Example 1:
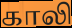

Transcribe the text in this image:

காலி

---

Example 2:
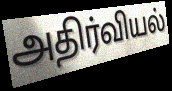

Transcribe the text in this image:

அதிர்வியல்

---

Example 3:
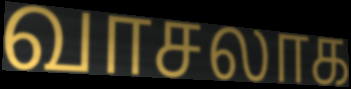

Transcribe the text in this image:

வாசலாக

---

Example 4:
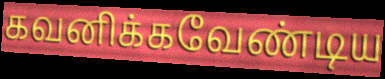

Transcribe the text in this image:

கவனிக்கவேண்டிய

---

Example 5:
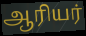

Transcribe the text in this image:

ஆரியர்